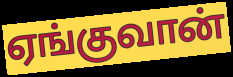
ஏங்குவான்